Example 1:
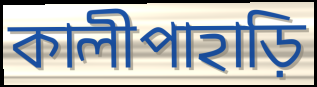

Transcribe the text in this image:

কালীপাহাড়ি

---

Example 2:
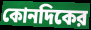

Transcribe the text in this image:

কোনদিকের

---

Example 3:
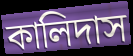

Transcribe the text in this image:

কালিদাস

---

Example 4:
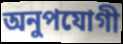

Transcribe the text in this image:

অনুপযোগী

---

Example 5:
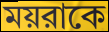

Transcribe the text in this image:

ময়রাকে